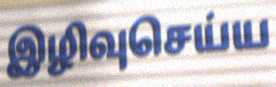
இழிவுசெய்ய